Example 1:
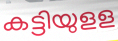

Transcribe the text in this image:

കട്ടിയുളള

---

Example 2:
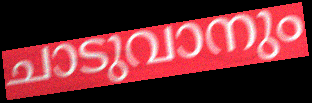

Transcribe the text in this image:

ചാടുവാനും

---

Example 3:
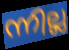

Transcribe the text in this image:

ന്നില്ല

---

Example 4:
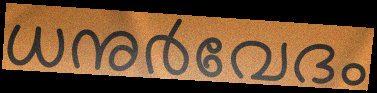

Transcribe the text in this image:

ധനുർവേദം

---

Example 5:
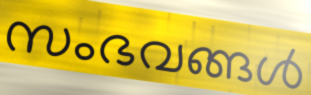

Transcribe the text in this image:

സംഭവങ്ങൾ